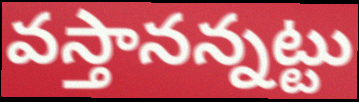
వస్తానన్నట్టు